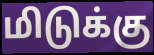
மிடுக்கு